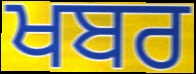
ਖਬਰ